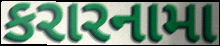
કરારનામા